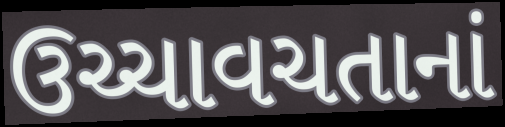
ઉચ્ચાવચતાનાં